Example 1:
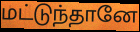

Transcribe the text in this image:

மட்டுந்தானே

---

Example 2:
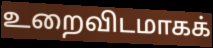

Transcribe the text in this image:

உறைவிடமாகக்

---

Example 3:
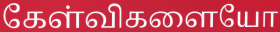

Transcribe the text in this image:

கேள்விகளையோ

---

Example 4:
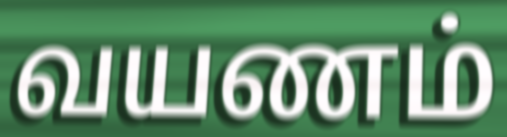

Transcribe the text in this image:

வயணம்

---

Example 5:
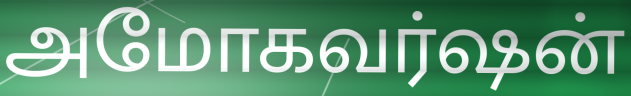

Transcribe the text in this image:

அமோகவர்ஷன்